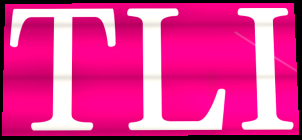
TLI